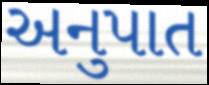
અનુપાત